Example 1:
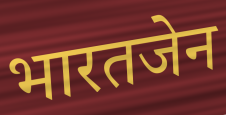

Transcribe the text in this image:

भारतजेन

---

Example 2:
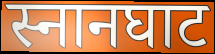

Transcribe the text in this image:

स्नानघाट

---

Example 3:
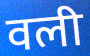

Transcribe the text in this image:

वली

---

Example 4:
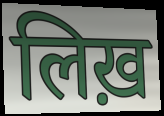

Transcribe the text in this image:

लिख़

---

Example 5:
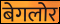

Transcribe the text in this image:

बेगलोर